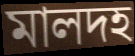
মালদহ